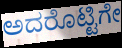
ಅದರೊಟ್ಟಿಗೇ